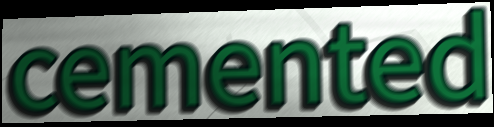
cemented